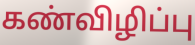
கண்விழிப்பு